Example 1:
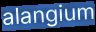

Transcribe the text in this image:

alangium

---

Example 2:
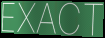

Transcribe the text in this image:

EXACT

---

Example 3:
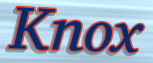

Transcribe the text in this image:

Knox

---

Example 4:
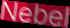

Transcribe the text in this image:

Nebel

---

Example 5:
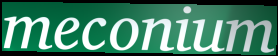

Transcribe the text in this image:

meconium